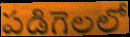
పడిగెలలో